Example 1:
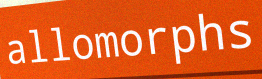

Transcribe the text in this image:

allomorphs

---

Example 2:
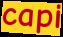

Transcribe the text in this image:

capi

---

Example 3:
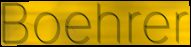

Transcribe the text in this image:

Boehrer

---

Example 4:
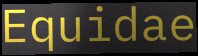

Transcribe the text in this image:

Equidae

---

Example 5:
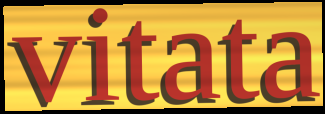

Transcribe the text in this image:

vitata